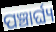
ପଞ୍ଚାର୍ଘ୍ୟ